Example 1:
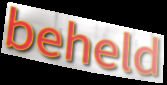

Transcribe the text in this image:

beheld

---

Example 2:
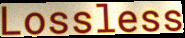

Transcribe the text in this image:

Lossless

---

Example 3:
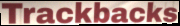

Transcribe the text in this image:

Trackbacks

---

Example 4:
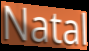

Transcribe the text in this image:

Natal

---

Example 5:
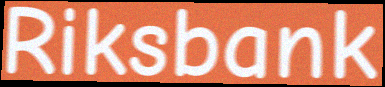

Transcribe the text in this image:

Riksbank